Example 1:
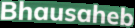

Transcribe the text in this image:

Bhausaheb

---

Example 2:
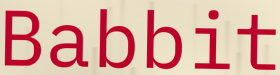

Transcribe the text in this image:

Babbit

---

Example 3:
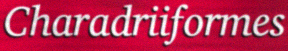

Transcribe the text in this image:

Charadriiformes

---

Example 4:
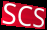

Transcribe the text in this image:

SCS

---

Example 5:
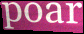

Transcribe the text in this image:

poar